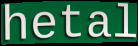
hetal